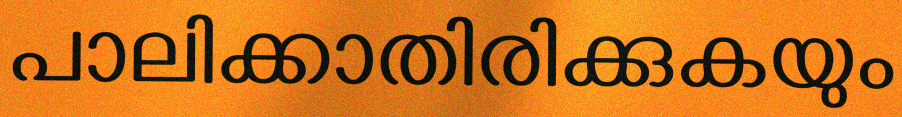
പാലിക്കാതിരിക്കുകയും